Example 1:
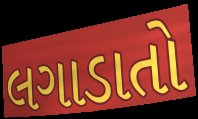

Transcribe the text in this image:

લગાડાતો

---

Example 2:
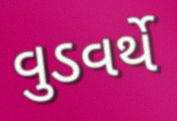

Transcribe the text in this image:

વુડવર્થે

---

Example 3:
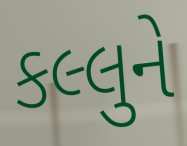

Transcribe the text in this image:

કલ્લુને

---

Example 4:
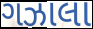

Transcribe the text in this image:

ગઝાલા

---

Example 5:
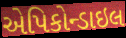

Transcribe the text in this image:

એપિકોન્ડાઇલ